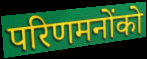
परिणमनोंको